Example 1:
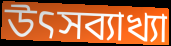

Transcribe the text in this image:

উৎসব্যাখ্যা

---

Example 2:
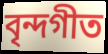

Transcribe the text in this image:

বৃন্দগীত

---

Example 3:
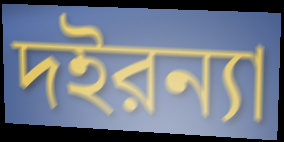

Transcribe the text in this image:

দইরন্যা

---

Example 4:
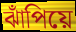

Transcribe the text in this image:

ঝাঁপিয়ে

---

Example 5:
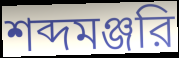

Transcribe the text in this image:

শব্দমঞ্জরি